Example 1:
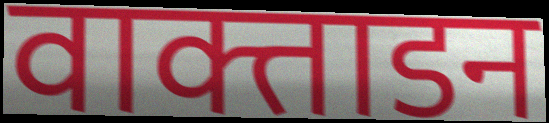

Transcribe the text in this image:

वाक्ताडन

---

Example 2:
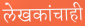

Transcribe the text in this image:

लेखकांचाही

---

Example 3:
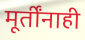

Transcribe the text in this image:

मूर्तींनाही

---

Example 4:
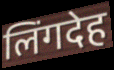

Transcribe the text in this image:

लिंगदेह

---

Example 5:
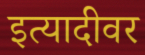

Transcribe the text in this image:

इत्यादीवर